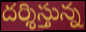
దర్శిస్తున్న